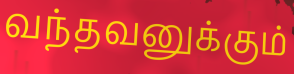
வந்தவனுக்கும்